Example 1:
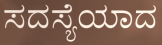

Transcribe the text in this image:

ಸದಸ್ಯೆಯಾದ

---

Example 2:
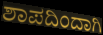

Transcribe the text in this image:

ಶಾಪದಿಂದಾಗಿ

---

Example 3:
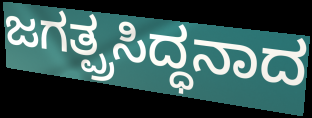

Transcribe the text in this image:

ಜಗತ್ಪ್ರಸಿದ್ಧನಾದ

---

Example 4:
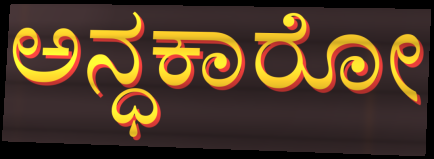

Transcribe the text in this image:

ಅನ್ಧಕಾರೋ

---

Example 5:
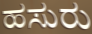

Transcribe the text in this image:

ಹಸುರು